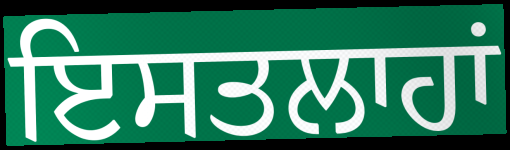
ਇਸਤਲਾਹਾਂ